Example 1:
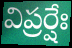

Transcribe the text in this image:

విప్రర్షేః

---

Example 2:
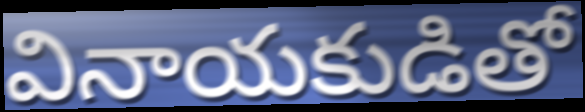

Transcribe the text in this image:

వినాయకుడితో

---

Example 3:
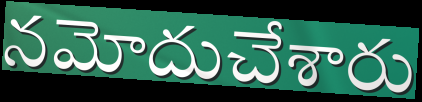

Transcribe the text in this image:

నమోదుచేశారు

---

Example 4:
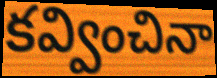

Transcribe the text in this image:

కవ్వించినా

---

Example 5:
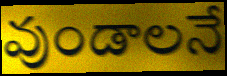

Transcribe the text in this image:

వుండాలనే